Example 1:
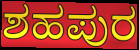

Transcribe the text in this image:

ಶಹಪುರ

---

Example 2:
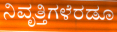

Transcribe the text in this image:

ನಿವೃತ್ತಿಗಳೆರಡೂ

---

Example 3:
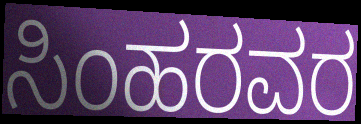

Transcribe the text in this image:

ಸಿಂಹರವರ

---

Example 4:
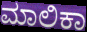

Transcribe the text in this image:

ಮಾಲಿಕಾ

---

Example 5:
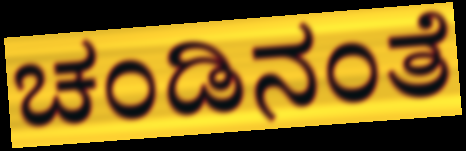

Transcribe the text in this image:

ಚಂಡಿನಂತೆ